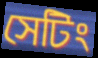
সেটিং